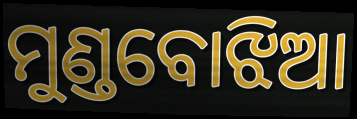
ମୁଣ୍ଡବୋଝିଆ